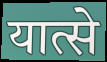
यात्से